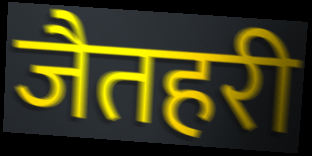
जैतहरी